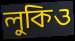
লুকিও